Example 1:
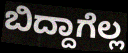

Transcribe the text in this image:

ಬಿದ್ದಾಗೆಲ್ಲ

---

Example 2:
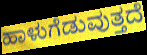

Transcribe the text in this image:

ಹಾಳುಗೆಡುವುತ್ತದೆ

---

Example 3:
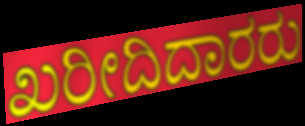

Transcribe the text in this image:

ಖರೀದಿದಾರರು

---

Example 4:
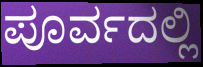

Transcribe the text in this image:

ಪೂರ್ವದಲ್ಲಿ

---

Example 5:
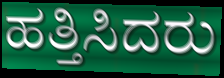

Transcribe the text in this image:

ಹತ್ತಿಸಿದರು